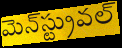
మెన్‌స్ట్రువల్